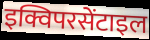
इक्विपरसेंटाइल